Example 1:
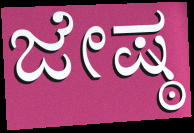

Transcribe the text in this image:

ಜೇಷ್ಠ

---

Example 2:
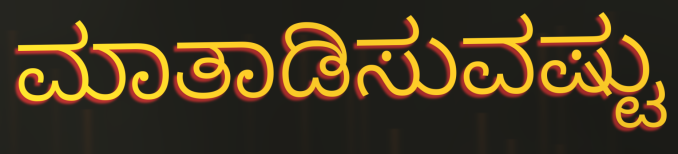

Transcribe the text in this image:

ಮಾತಾಡಿಸುವಷ್ಟು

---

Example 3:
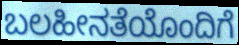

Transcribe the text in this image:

ಬಲಹೀನತೆಯೊಂದಿಗೆ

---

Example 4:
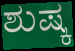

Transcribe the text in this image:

ಶುಷ್ಕ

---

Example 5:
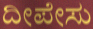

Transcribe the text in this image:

ದೀಪೇಸು